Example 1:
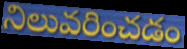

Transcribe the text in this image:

నిలువరించడం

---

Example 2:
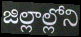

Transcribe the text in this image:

జిల్లాల్లోని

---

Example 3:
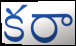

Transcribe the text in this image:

కరా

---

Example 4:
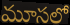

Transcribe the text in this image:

మూసలో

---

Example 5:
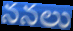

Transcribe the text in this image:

ననలు